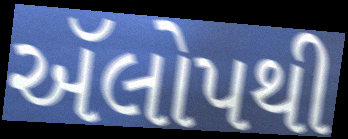
ઍલોપથી